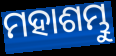
ମହାଶମ୍ଭୁ